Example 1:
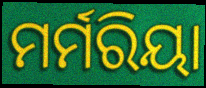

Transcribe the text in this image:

ମର୍ମରିୟା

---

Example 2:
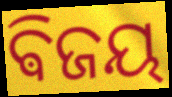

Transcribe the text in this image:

ଵିଜୟ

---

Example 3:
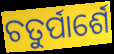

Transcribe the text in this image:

ଚତୁର୍ପାର୍ଶେ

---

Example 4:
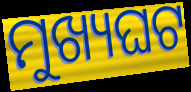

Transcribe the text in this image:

ମୁଖ୍ୟଘଟ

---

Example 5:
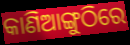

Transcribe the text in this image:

କାଣିଆଙ୍ଗୁଠିରେ